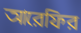
আরেফির